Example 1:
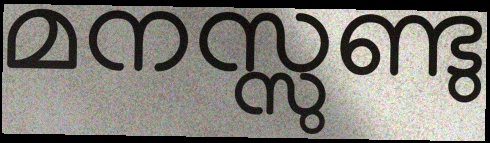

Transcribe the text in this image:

മനസ്സുണ്ടു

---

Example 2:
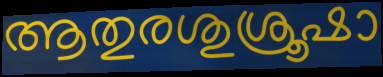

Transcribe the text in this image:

ആതുരശുശ്രൂഷാ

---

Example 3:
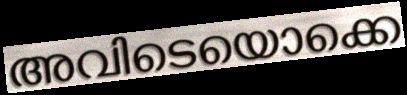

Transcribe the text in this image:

അവിടെയൊക്കെ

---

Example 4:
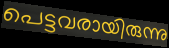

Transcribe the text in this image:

പെട്ടവരായിരുന്നു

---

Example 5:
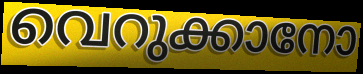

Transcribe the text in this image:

വെറുക്കാനോ